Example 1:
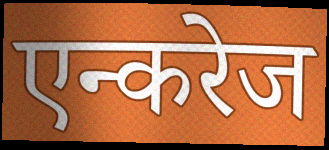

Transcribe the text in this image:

एन्करेज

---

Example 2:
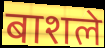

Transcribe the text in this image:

बाशले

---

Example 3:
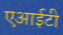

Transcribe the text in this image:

एआईटी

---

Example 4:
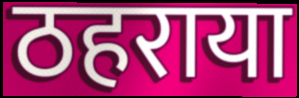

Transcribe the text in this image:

ठहराया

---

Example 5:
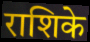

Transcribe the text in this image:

राशिके